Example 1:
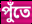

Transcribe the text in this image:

পুঁতে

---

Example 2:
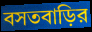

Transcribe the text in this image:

বসতবাড়ির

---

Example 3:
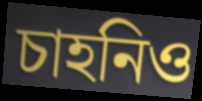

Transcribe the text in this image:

চাহনিও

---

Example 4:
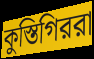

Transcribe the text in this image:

কুস্তিগিররা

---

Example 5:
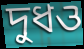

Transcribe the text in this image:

দুধও